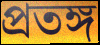
প্রতঙ্গ